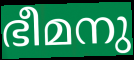
ഭീമനു